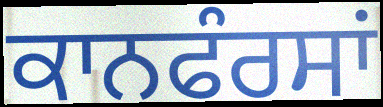
ਕਾਨਫੰਰਸਾਂ